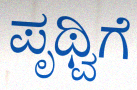
ಪೃಥ್ವಿಗೆ